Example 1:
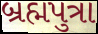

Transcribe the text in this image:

બ્રહ્મપુત્રા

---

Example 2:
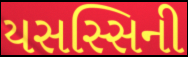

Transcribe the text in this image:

યસસ્સિની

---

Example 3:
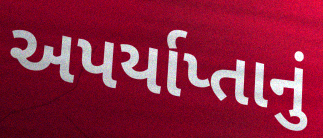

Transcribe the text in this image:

અપર્યાપ્તાનું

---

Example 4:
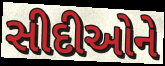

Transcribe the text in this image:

સીદીઓને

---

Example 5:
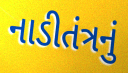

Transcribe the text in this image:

નાડીતંત્રનું